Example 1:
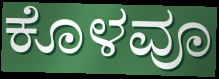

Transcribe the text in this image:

ಕೊಳವೂ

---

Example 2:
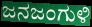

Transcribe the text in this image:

ಜನಜಂಗುಳಿ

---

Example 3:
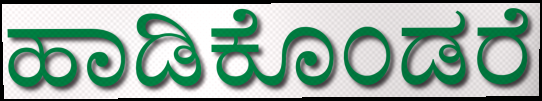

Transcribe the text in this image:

ಹಾಡಿಕೊಂಡರೆ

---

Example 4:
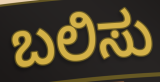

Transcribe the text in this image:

ಬಲಿಸು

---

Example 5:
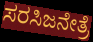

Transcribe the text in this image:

ಸರಸಿಜನೇತ್ರೆ